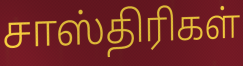
சாஸ்திரிகள்